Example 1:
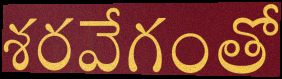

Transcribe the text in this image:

శరవేగంతో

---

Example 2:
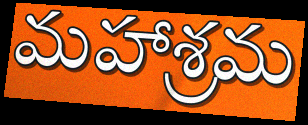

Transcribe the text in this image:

మహాశ్రమ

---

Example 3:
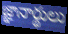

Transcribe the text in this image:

జ్ఞానార్థులు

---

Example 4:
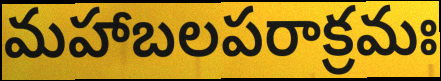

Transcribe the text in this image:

మహాబలపరాక్రమః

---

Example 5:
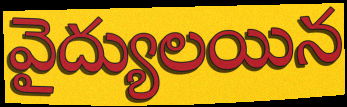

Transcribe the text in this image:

వైద్యులయిన